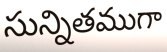
సున్నితముగా